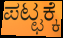
ಪಟ್ಟಕ್ಕೆ